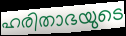
ഹരിതാഭയുടെ